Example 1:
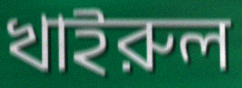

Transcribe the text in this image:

খাইরুল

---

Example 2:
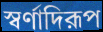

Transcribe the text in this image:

স্বর্ণাদিরূপ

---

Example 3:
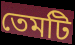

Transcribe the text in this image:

তেমটি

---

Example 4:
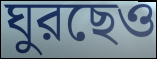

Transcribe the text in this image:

ঘুরছেও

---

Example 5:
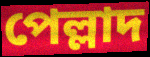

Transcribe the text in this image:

পেল্লাদ